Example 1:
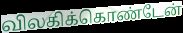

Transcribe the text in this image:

விலகிக்கொண்டேன்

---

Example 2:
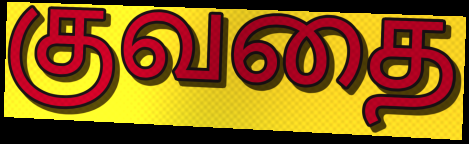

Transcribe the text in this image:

குவதை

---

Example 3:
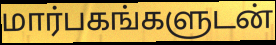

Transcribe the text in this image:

மார்பகங்களுடன்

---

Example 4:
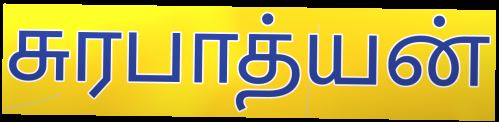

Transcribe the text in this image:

சுரபாத்யன்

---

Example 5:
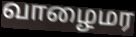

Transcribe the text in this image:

வாழைமர